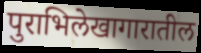
पुराभिलेखागारातील